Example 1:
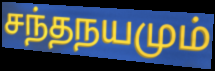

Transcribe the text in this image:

சந்தநயமும்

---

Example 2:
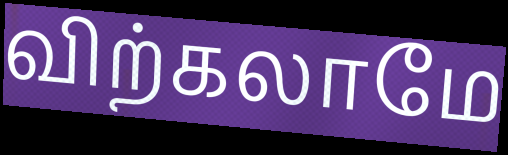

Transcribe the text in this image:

விற்கலாமே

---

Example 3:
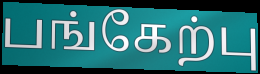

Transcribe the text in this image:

பங்கேற்பு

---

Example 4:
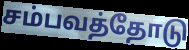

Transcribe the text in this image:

சம்பவத்தோடு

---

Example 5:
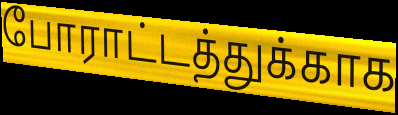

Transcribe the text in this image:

போராட்டத்துக்காக